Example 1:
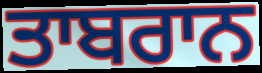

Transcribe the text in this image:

ਤਾਬਰਾਨ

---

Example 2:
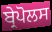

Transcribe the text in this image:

ਬ੍ਰੇਪੋਲਸ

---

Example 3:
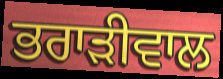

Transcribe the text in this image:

ਭਰਾੜੀਵਾਲ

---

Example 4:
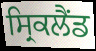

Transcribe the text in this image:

ਸ੍ਰਿਕਲੈਂਡ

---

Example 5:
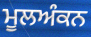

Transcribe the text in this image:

ਮੂਲਅੰਕਨ